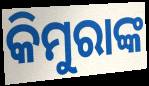
କିମୁରାଙ୍କ